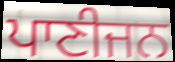
ਪਾਣੀਜਨ